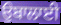
ਉਬਾਲਾਈ